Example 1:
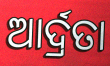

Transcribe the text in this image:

ଆର୍ଦ୍ରତା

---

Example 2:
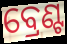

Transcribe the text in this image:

ବ୍ରେଣ୍ଟ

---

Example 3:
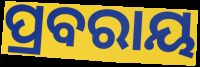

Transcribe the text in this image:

ପ୍ରବରାୟ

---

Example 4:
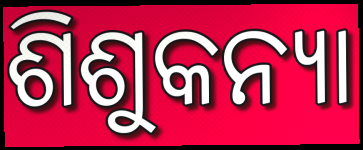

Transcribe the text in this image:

ଶିଶୁକନ୍ଯା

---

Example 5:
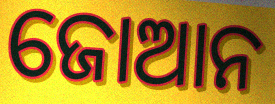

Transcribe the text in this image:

ଜୋଆନ